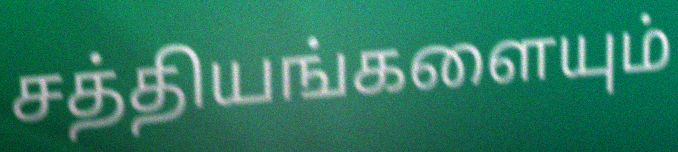
சத்தியங்களையும்